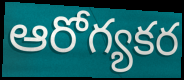
ఆరోగ్యకర